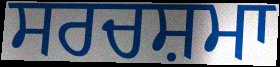
ਸਰਚਸ਼ਮਾ